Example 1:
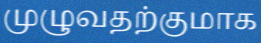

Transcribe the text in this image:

முழுவதற்குமாக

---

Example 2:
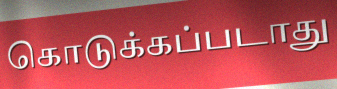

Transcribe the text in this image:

கொடுக்கப்படாது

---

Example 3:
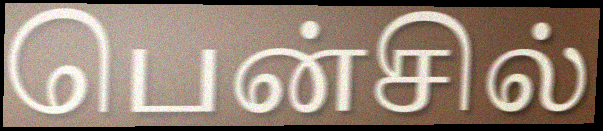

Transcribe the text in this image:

பென்சில்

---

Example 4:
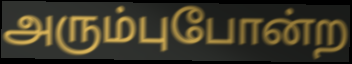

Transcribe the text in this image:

அரும்புபோன்ற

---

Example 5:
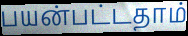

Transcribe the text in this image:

பயன்பட்டதாம்